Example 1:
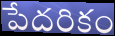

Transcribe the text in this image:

పేదరికం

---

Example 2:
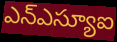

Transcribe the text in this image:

ఎన్ఎస్యూఐ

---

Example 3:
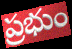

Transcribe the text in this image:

ప్రభుం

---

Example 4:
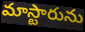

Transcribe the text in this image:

మాస్టారును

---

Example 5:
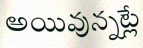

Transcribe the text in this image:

అయివున్నట్లే